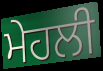
ਮੇਹਲੀ